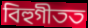
বিহুগীতত